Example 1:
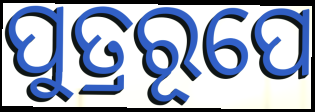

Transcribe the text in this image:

ପୁତ୍ରରୂପେ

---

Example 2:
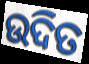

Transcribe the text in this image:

ଉଦିତ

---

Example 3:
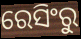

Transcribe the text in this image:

ରେସିଂରୁ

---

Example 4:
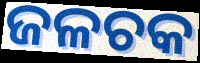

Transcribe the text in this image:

ଜଳଚକ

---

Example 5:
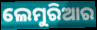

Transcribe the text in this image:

ଲେମୁରିଆର